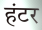
हंटर